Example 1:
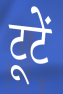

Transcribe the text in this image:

टूटें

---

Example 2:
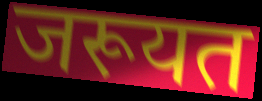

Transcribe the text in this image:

जरूयत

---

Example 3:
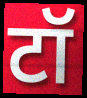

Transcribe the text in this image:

टॉ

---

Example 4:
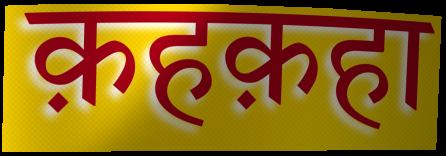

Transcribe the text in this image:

क़हक़हा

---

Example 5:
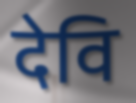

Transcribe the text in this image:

देवि